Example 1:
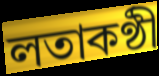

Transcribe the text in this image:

লতাকণ্ঠী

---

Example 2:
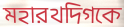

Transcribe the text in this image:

মহারথদিগকে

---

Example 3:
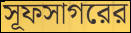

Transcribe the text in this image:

সূফসাগরের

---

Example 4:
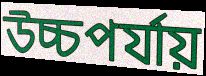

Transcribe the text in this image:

উচ্চপর্যায়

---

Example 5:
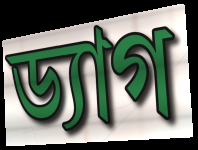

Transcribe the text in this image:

ড্যাগ